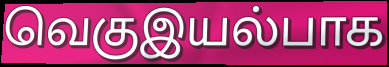
வெகுஇயல்பாக